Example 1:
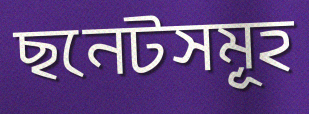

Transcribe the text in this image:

ছনেটসমূহ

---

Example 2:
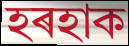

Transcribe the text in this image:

হৰহাক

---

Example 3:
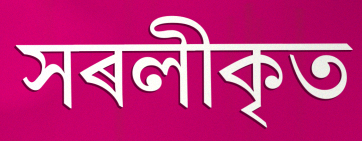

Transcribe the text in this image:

সৰলীকৃত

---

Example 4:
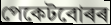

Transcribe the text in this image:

পেকেটবোৰৰ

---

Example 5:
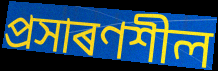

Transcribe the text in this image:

প্ৰসাৰণশীল